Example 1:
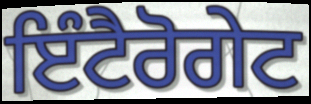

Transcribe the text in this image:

ਇੰਟੈਰੋਗੇਟ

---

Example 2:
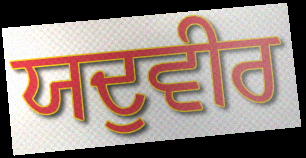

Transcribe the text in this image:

ਯਦੁਵੀਰ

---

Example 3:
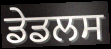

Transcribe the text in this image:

ਡੇਡਲਸ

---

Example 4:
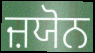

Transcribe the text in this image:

ਜ਼ਯੋਨ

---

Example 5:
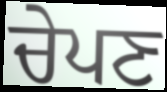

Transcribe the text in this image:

ਚੇਪਣ